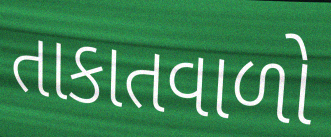
તાકાતવાળો